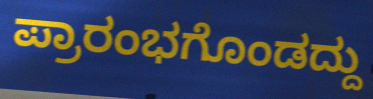
ಪ್ರಾರಂಭಗೊಂಡದ್ದು